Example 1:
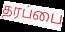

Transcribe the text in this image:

தரப்பை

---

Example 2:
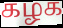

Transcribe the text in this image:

கழக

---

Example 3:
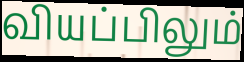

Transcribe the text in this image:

வியப்பிலும்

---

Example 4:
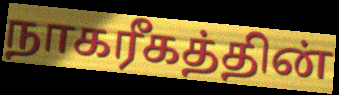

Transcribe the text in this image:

நாகரீகத்தின்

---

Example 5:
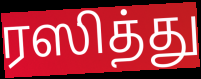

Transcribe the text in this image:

ரஸித்து